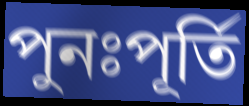
পুনঃপূৰ্তি